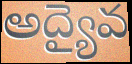
అద్యైవ